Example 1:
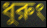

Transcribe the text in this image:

ধুরুং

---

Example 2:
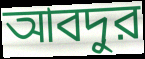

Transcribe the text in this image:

আবদুর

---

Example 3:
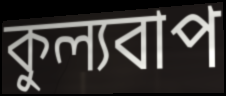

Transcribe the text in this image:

কুল্যবাপ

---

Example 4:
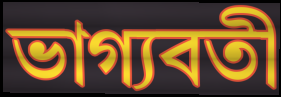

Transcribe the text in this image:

ভাগ্যবতী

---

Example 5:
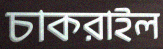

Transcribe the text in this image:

চাকরাইল